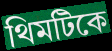
থিমটিকে